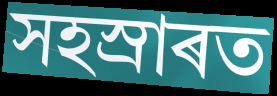
সহস্ৰাৰত